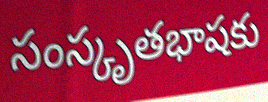
సంస్కృతభాషకు